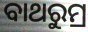
ବାଥରୁମ୍ର